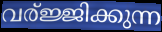
വര്ജ്ജിക്കുന്ന